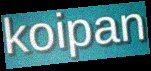
koipan